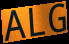
ALG